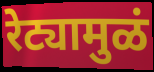
रेट्यामुळं